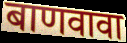
बाणवावा